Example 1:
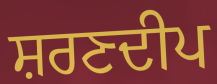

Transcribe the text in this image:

ਸ਼ਰਣਦੀਪ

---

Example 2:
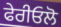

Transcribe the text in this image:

ਫੇਰੀਓਲੋ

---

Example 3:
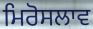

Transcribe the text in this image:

ਮਿਰੋਸਲਾਵ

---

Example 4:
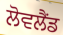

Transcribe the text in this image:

ਲੋਵਲੈਂਡ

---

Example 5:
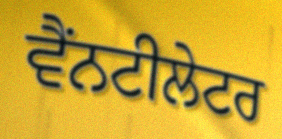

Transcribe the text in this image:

ਵੈਂਨਟੀਲੇਟਰ